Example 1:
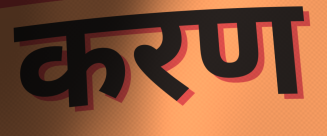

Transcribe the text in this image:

करण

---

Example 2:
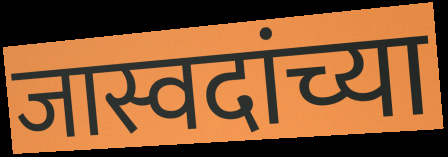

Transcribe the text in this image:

जास्वदांच्या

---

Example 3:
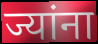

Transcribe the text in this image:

ज्यांना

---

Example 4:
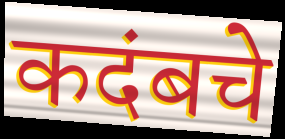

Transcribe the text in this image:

कदंबचे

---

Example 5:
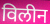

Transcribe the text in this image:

विलीन